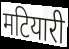
मटियारी